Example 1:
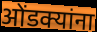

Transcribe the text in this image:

ओंडक्यांना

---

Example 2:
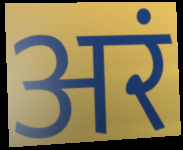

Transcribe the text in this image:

अरं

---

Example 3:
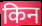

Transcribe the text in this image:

किन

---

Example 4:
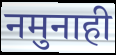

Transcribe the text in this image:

नमुनाही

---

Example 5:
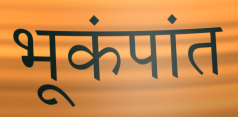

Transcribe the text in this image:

भूकंपांत